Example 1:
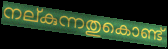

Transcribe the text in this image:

നല്കുന്നതുകൊണ്ട്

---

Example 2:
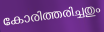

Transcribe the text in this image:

കോരിത്തരിച്ചതും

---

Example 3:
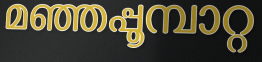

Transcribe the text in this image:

മഞ്ഞപ്പൂമ്പാറ്റ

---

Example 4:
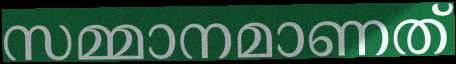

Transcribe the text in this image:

സമ്മാനമാണത്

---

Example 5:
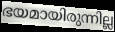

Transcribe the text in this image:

ഭയമായിരുന്നില്ല